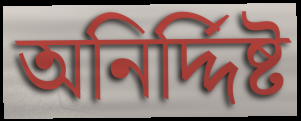
অনির্দ্দিষ্ট